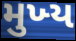
મુખ્‍ય